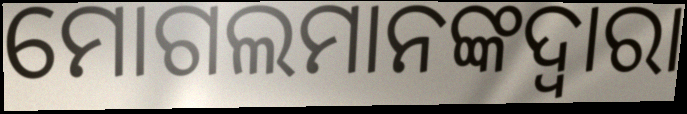
ମୋଗଲମାନଙ୍କଦ୍ୱାରା